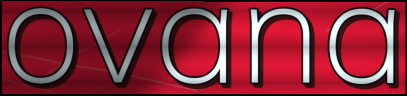
ovana